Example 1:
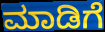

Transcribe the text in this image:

ಮಾಡಿಗೆ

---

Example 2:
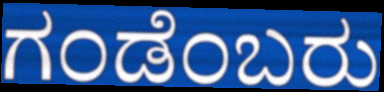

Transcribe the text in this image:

ಗಂಡೆಂಬರು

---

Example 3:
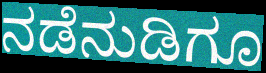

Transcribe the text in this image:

ನಡೆನುಡಿಗೂ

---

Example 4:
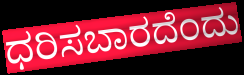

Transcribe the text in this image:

ಧರಿಸಬಾರದೆಂದು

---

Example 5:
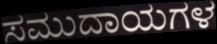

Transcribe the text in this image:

ಸಮುದಾಯಗಳ